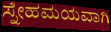
ಸ್ನೇಹಮಯವಾಗಿ